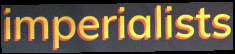
imperialists